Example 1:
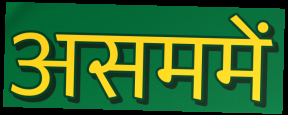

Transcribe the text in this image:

असममें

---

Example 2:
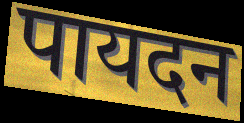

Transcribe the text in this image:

पायदन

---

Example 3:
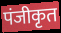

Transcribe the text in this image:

पंजीकृत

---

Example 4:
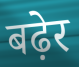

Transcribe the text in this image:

बढ़ेर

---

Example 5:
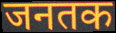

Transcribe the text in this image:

जनतक